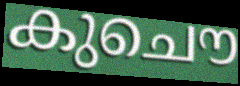
കുചൌ